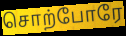
சொற்போரே